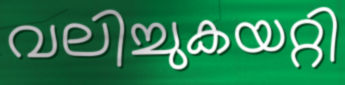
വലിച്ചുകയറ്റി